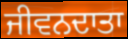
ਜੀਵਨਦਾਤਾ